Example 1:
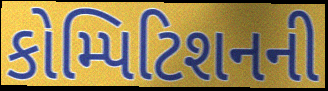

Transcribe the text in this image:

કોમ્પિટિશનની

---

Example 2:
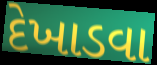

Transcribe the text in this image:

દેખાડવા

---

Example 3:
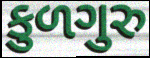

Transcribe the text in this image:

કુળગુરુ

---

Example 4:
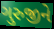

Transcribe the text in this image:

ગુરુજીને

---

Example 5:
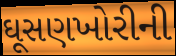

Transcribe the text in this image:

ઘૂસણખોરીની